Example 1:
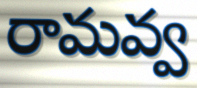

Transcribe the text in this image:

రామవ్వ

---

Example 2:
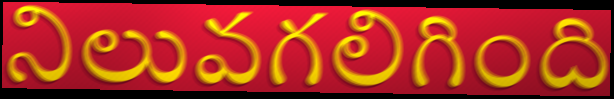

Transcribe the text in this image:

నిలువగలిగింది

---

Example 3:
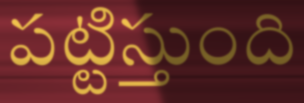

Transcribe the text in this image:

పట్టిస్తుంది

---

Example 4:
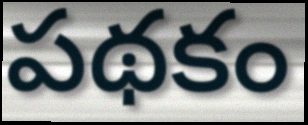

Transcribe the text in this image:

పథకం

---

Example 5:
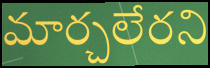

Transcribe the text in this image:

మార్చలేరని